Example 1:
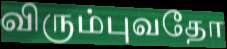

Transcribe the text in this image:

விரும்புவதோ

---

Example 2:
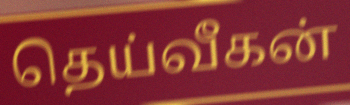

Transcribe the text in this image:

தெய்வீகன்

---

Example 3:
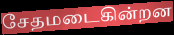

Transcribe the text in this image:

சேதமடைகின்றன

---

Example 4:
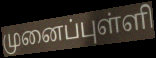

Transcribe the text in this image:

முனைப்புள்ளி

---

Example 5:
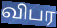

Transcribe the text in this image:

விபர